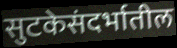
सुटकेसंदर्भातील